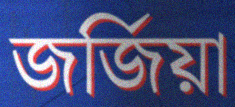
জৰ্জিয়া